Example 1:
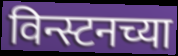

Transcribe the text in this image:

विन्स्टनच्या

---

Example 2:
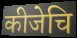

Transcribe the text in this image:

कीजेचि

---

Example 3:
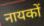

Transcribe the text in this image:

नायकों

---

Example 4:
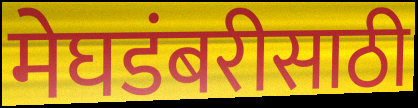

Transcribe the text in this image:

मेघडंबरीसाठी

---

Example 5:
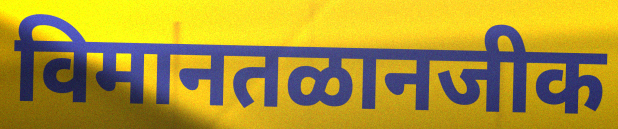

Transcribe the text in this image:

विमानतळानजीक